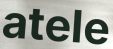
atele